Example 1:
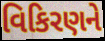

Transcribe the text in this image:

વિકિરણને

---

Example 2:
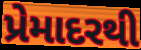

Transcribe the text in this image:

પ્રેમાદરથી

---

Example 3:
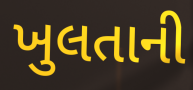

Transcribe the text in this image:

ખુલતાની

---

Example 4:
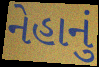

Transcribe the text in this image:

નેહાનું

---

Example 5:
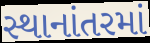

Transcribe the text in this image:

સ્થાનાંતરમાં